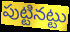
పుట్టినట్టు